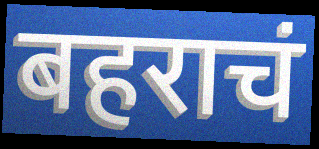
बहराचं